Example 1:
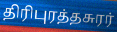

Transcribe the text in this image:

திரிபுரத்தசுரர்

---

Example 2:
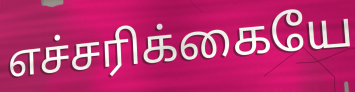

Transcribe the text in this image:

எச்சரிக்கையே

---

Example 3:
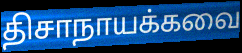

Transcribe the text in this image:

திசாநாயக்கவை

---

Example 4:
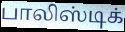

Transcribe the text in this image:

பாலிஸ்டிக்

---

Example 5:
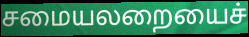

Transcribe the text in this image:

சமையலறையைச்